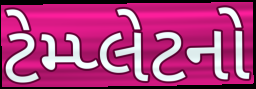
ટેમ્પ્લેટનો